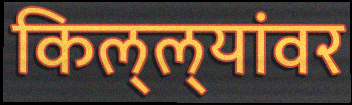
किल्ल्यांवर